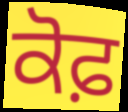
ਕੋਫ਼